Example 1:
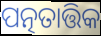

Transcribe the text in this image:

ପତ୍ନତାତ୍ତିକ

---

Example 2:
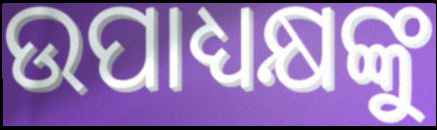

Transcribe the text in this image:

ଉପାଧ୍ୟକ୍ଷଙ୍କୁ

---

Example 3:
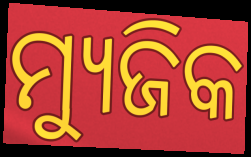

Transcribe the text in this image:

ମ୍ୟୁଜିକ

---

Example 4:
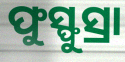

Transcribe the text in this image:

ଫୁସ୍ଫୁସ୍ରା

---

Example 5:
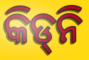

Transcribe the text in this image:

କିଡ୍‌ନି